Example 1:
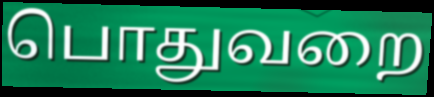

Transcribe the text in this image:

பொதுவறை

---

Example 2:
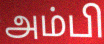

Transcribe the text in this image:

அம்பி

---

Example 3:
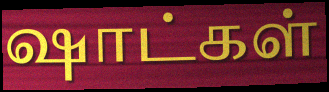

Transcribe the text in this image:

ஷாட்கள்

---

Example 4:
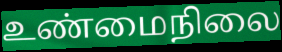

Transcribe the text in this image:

உண்மைநிலை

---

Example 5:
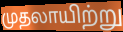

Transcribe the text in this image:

முதலாயிற்று